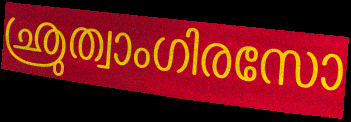
ഛ്രുത്വാംഗിരസോ